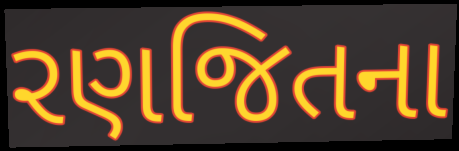
રણજિતના